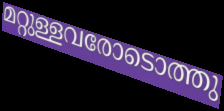
മറ്റുള്ളവരോടൊത്തു